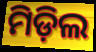
ମିଡ଼ିଲ